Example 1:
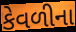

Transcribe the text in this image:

કેવળીના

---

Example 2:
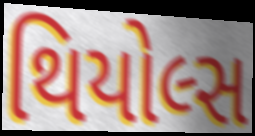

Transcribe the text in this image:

થિયોલ્સ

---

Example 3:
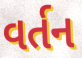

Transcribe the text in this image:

વર્તન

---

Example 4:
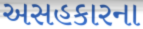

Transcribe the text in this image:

અસહકારના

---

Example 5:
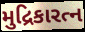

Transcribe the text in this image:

મુદ્રિકારત્ન